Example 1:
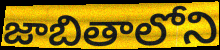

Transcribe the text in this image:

జాబితాలోని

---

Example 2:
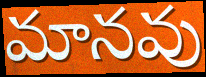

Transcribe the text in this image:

మానవు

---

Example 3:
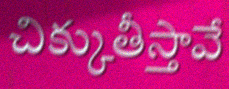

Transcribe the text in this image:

చిక్కుతీస్తావే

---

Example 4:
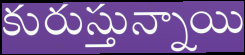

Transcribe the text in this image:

కురుస్తున్నాయి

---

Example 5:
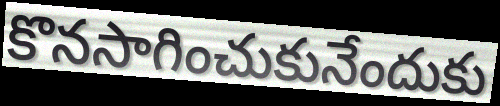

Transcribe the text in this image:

కొనసాగించుకునేందుకు